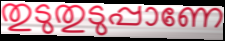
തുടുതുടുപ്പാണേ